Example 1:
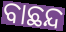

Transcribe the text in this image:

ବାଛନ୍ଦ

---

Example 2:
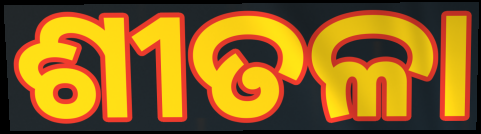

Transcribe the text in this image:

ଶୀତଳା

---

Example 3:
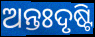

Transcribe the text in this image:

ଅନ୍ତଃଦୃଷ୍ଟି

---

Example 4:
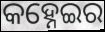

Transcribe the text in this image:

କହ୍ନେଇର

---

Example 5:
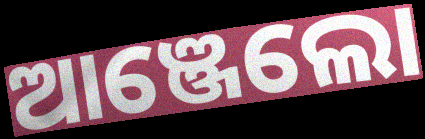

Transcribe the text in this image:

ଆଞ୍ଜେଲୋ